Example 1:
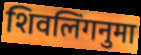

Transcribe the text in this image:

शिवलिंगनुमा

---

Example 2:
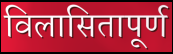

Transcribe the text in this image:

विलासितापूर्ण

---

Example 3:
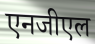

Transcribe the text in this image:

एनजीएल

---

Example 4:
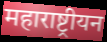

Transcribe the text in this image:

महाराष्ट्रीयन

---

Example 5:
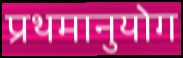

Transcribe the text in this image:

प्रथमानुयोग